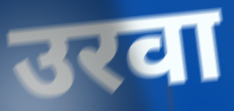
उरवा